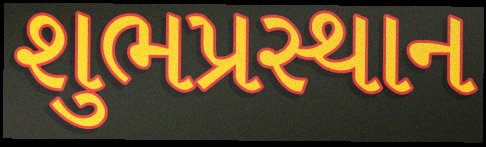
શુભપ્રસ્થાન